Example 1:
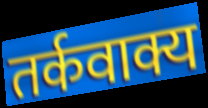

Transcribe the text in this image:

तर्कवाक्य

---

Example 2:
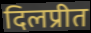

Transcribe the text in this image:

दिलप्रीत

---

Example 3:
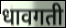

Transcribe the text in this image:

धावगती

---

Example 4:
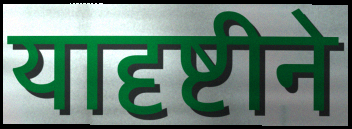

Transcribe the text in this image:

यादृष्टीने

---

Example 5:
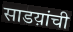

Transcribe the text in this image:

साडय़ांची